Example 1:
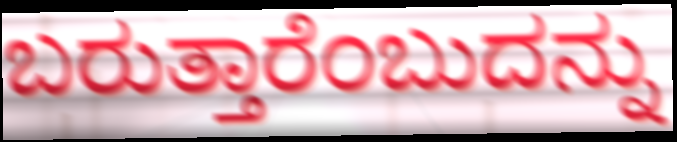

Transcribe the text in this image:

ಬರುತ್ತಾರೆಂಬುದನ್ನು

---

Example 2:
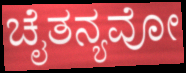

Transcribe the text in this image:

ಚೈತನ್ಯವೋ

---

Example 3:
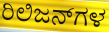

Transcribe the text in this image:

ರಿಲಿಜನ್‌ಗಳ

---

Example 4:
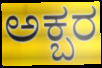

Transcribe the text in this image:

ಅಕ್ಬರ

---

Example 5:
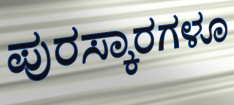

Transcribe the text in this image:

ಪುರಸ್ಕಾರಗಳೂ